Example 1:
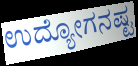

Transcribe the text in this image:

ಉದ್ಯೋಗನಷ್ಟ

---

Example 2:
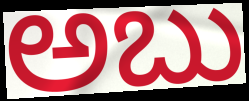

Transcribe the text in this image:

ಅಬು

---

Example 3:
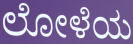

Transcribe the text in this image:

ಲೋಳೆಯ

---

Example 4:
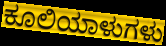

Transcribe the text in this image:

ಕೂಲಿಯಾಳುಗಳು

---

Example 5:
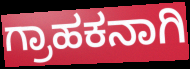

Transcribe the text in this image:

ಗ್ರಾಹಕನಾಗಿ